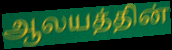
ஆலயத்தின்